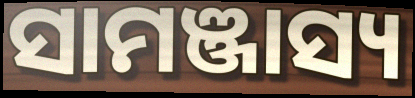
ସାମଞ୍ଜାସ୍ୟ